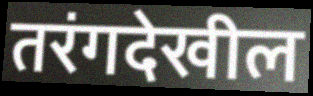
तरंगदेखील